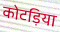
कोटड़िया